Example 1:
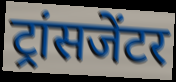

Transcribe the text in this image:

ट्रांसजेंटर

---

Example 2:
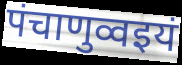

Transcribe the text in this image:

पंचाणुव्वइयं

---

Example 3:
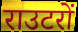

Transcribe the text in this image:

राउटरों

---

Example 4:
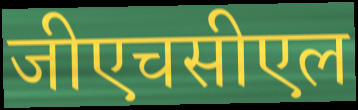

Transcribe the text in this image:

जीएचसीएल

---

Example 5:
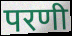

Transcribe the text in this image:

परणी